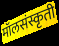
मॉलसंस्कृती